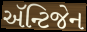
ઍન્ટિજેન